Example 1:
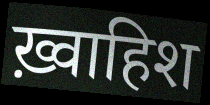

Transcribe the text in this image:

ख़्वाहिश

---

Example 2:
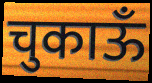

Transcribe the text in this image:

चुकाऊँ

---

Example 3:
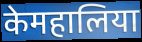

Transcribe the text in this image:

केमहालिया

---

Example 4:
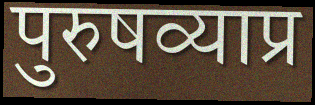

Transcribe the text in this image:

पुरुषव्याप्र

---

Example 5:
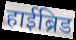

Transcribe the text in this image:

हाईब्रिड